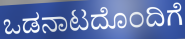
ಒಡನಾಟದೊಂದಿಗೆ